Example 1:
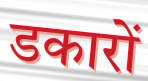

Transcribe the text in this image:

डकारों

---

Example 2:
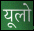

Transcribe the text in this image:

यूलो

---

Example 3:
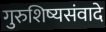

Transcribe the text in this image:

गुरुशिष्यसंवादे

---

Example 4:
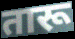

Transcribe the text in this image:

तारू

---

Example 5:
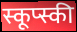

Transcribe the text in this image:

स्कूप्स्की